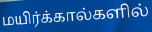
மயிர்க்கால்களில்